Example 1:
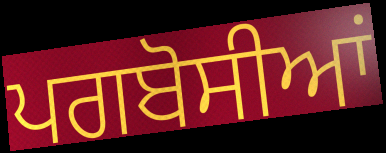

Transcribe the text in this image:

ਪਗਬੋਸੀਆਂ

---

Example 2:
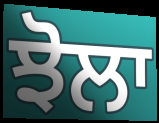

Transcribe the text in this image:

ਝੋਲਾ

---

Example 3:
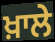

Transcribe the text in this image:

ਖ਼ਾਲੇ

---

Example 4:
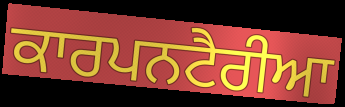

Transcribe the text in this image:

ਕਾਰਪਨਟੈਰੀਆ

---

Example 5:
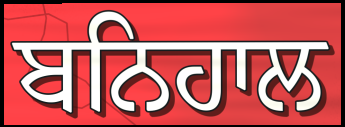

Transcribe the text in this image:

ਬਨਿਹਾਲ